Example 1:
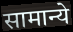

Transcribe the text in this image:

सामान्ये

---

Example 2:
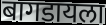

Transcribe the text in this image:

बागडायला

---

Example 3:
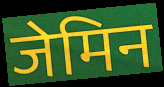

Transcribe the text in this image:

जेमिन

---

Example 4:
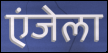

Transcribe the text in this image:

एंजेला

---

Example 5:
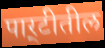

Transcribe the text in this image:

पार्टीतील